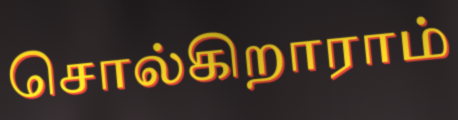
சொல்கிறாராம்